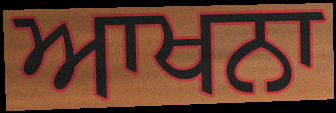
ਆਖਨਾ